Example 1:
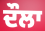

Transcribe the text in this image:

ਦੌਲਾ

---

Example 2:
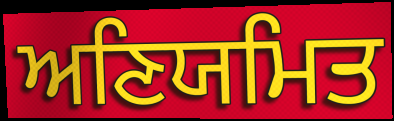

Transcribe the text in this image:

ਅਣਿਯਮਿਤ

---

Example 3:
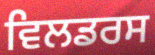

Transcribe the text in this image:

ਵਿਲਡਰਸ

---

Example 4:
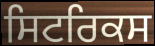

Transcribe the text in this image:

ਸਿਟਰਿਕਸ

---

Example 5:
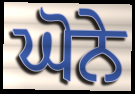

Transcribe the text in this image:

ਘੋਨੇ